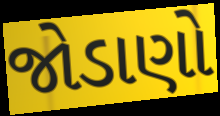
જોડાણો